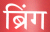
ब्रिंग